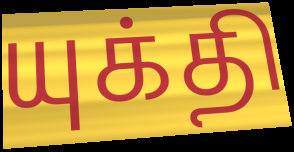
யுக்தி